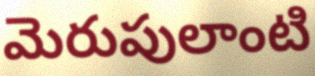
మెరుపులాంటి